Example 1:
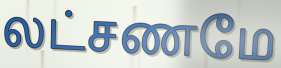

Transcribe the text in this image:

லட்சணமே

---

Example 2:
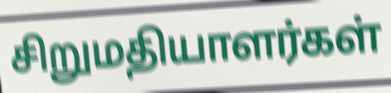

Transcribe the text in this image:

சிறுமதியாளர்கள்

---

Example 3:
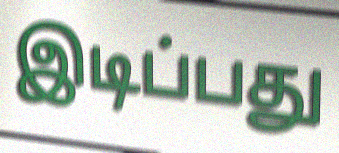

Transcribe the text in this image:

இடிப்பது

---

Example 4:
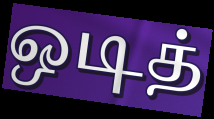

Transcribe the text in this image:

ஒடித்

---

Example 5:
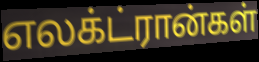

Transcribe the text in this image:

எலக்ட்ரான்கள்